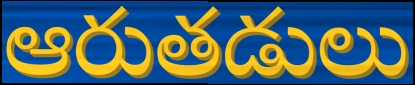
ఆరుతడులు